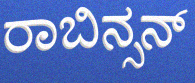
ರಾಬಿನ್ಸನ್